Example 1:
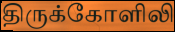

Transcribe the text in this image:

திருக்கோளிலி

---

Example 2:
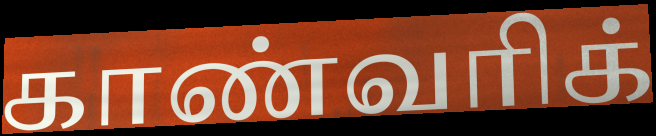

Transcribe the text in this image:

காண்வரிக்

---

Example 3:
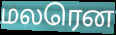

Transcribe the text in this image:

மலரென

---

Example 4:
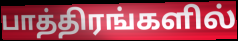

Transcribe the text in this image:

பாத்திரங்களில்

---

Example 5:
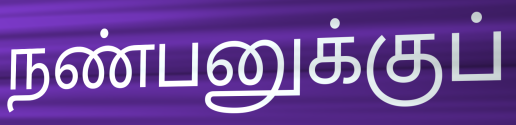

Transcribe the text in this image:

நண்பனுக்குப்